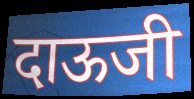
दाऊजी